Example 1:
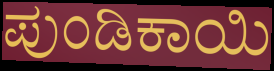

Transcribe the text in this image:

ಪುಂಡಿಕಾಯಿ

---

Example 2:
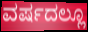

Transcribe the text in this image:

ವರ್ಷದಲ್ಲೂ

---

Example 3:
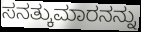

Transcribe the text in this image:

ಸನತ್ಕುಮಾರನನ್ನು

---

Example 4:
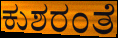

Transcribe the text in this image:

ಕುಶರಂತೆ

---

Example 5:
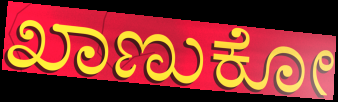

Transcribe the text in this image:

ಖಾಣುಕೋ